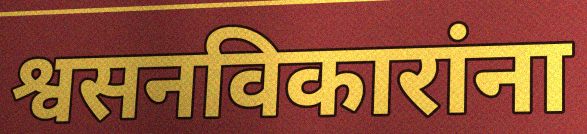
श्वसनविकारांना